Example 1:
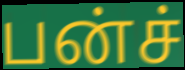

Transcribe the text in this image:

பன்ச்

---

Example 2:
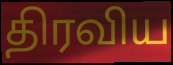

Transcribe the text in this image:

திரவிய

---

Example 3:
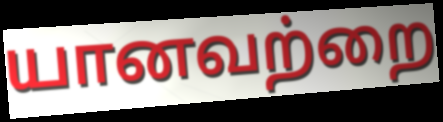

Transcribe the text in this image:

யானவற்றை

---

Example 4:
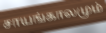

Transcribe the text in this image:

சாயங்காலமும்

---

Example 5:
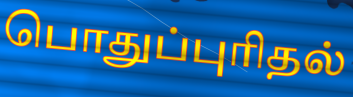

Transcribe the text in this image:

பொதுப்புரிதல்